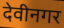
देवीनगर